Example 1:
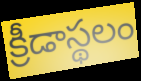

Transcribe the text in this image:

క్రీడాస్థలం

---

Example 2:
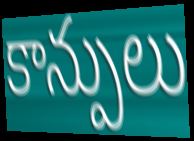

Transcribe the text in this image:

కాన్పులు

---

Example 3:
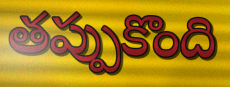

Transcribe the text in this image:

తప్పుకొంది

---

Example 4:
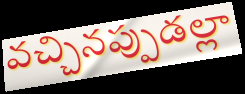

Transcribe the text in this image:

వచ్చినప్పుడల్లా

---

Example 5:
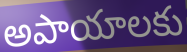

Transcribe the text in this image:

అపాయాలకు